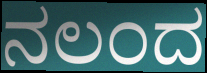
ನಲಂದ